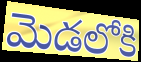
మెడలోకి